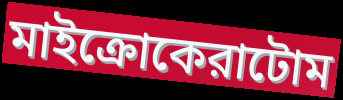
মাইক্রোকেরাটোম